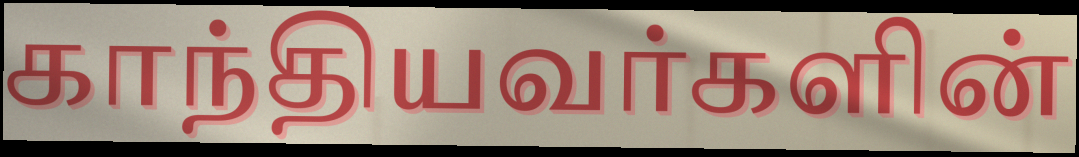
காந்தியவர்களின்